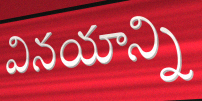
వినయాన్ని